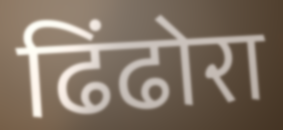
ढिंढोरा